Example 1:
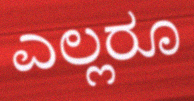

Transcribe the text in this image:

ಎಲ್ಲರೂ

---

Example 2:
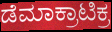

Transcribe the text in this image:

ಡೆಮಾಕ್ರಾಟಿಕ್ರ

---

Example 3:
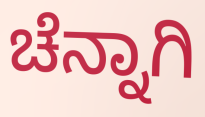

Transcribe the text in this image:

ಚೆನ್ನಾಗಿ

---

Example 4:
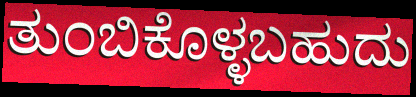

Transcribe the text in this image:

ತುಂಬಿಕೊಳ್ಳಬಹುದು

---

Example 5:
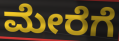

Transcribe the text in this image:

ಮೇರೆಗೆ